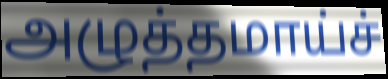
அழுத்தமாய்ச்